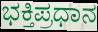
ಭಕ್ತಿಪ್ರಧಾನ